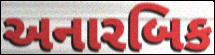
અનારબિક